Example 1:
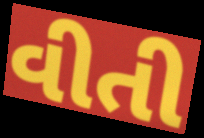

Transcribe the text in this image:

વીતી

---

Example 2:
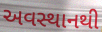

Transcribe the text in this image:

અવસ્થાનથી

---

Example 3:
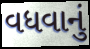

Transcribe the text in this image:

વધવાનું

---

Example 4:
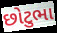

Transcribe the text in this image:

છોટુભા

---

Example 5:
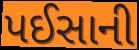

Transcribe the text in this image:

પઈસાની